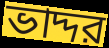
ভাদ্দর